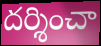
దర్శించా